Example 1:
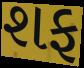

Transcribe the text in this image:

શફ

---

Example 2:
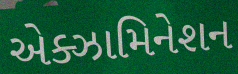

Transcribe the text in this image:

એક્ઝામિનેશન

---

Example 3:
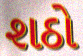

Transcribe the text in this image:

શઠો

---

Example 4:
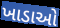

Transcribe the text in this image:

ખાડાઓ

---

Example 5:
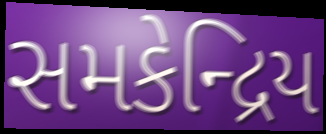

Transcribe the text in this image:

સમકેન્દ્રિય